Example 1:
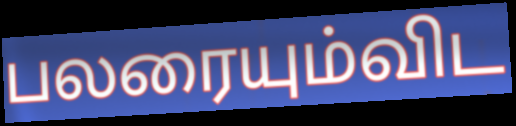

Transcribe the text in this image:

பலரையும்விட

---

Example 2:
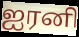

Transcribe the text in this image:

ஐரனி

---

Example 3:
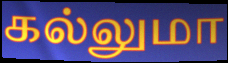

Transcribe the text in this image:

கல்லுமா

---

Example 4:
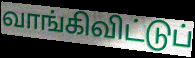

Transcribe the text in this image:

வாங்கிவிட்டுப்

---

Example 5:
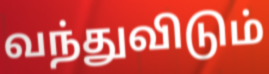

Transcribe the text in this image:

வந்துவிடும்